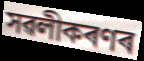
সৱলীকৰণৰ